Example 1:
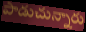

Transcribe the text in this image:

పాడుచున్నారు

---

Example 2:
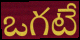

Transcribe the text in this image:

ఒగటే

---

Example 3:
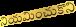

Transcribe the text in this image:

నియమించుకొని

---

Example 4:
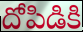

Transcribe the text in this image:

దోపిడికి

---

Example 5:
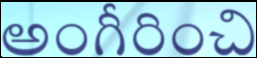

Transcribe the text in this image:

అంగీరించి